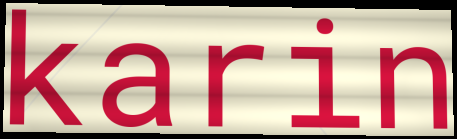
karin